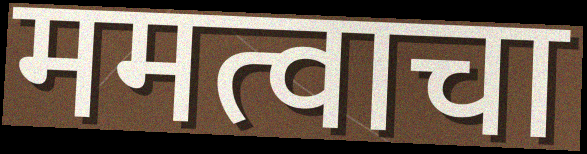
ममत्वाचा